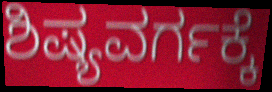
ಶಿಷ್ಯವರ್ಗಕ್ಕೆ